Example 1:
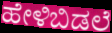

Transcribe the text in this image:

ಹೇಳಿಬಿಡಲೆ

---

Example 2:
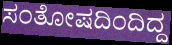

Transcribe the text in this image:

ಸಂತೋಷದಿಂದಿದ್ದ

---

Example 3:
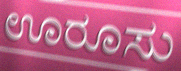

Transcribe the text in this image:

ಊರೂಸು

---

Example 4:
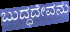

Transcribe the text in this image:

ಬುದ್ಧದೇವನು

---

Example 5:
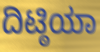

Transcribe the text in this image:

ದಿಟ್ಠಿಯಾ